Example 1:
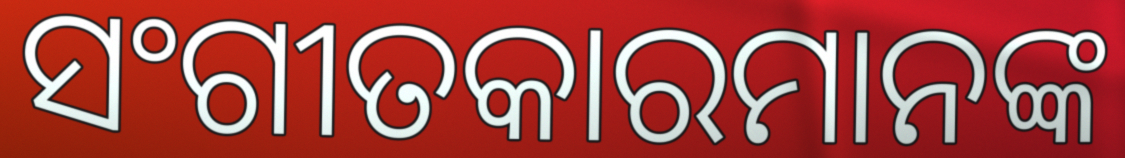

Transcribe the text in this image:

ସଂଗୀତକାରମାନଙ୍କ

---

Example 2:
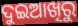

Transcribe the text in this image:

ଦୁଇଆଖିରୁ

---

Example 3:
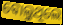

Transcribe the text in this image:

ବୋଲୁଥିଲେ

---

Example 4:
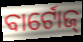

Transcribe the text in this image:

ବାର୍ଟୋଜ୍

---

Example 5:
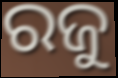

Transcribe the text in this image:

ରଜୁ